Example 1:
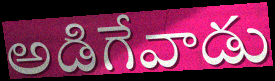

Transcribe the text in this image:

అడిగేవాడు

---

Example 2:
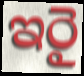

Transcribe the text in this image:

ఇరై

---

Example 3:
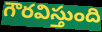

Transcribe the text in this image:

గౌరవిస్తుంది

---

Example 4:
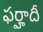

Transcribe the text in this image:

ఫర్హాదీ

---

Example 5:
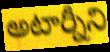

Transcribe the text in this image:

అటార్నీని